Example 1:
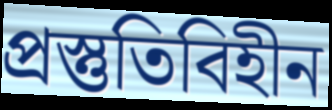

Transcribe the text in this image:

প্রস্তুতিবিহীন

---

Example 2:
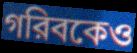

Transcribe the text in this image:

গরিবকেও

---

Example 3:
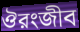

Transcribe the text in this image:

ঔরংজীব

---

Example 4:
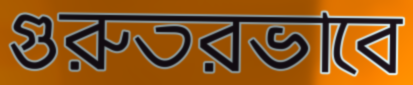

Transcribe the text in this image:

গুরুতরভাবে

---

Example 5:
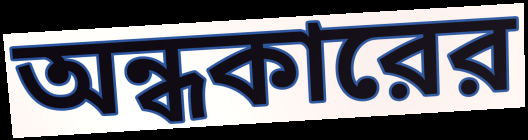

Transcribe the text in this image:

অন্ধকারের